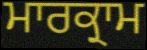
ਮਾਰਕ੍ਰਾਮ